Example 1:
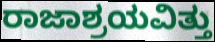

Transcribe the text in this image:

ರಾಜಾಶ್ರಯವಿತ್ತು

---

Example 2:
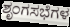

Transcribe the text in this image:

ಶೃಂಗಸಭೆಗಳ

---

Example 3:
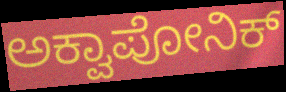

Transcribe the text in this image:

ಅಕ್ವಾಪೋನಿಕ್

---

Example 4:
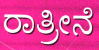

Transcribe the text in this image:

ರಾತ್ರೀನೆ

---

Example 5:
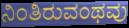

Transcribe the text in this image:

ನಿಂತಿರುವಂಥವು